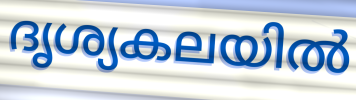
ദൃശ്യകലയിൽ